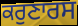
ਕਰੁਣਾਰਸ